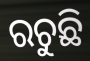
ରଚୁଛି